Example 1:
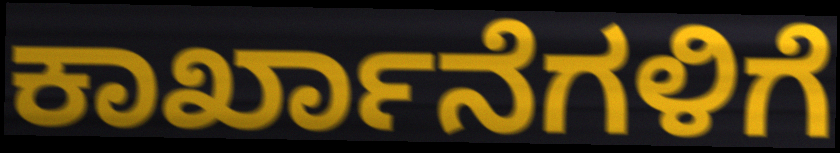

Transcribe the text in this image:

ಕಾರ್ಖಾನೆಗಳಿಗೆ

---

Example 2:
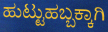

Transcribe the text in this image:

ಹುಟ್ಟುಹಬ್ಬಕ್ಕಾಗಿ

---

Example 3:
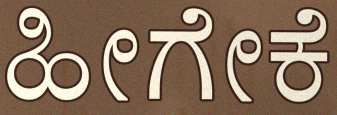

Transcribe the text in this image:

ಹೀಗೇಕೆ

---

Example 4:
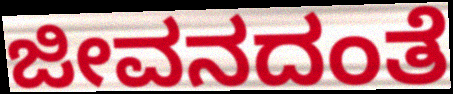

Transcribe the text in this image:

ಜೀವನದಂತೆ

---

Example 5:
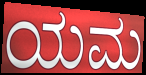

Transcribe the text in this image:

ಯಮ